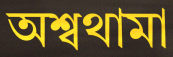
অশ্বথামা